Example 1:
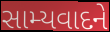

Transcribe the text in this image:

સામ્યવાદને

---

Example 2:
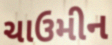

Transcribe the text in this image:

ચાઉમીન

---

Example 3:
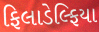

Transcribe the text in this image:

ફિલાડેલ્ફિયા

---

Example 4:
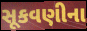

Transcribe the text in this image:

સૂકવણીના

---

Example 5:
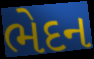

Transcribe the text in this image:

ભેદન